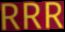
RRR